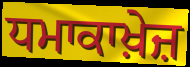
ਧਮਾਕਾਖ਼ੇਜ਼